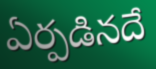
ఏర్పడినదే